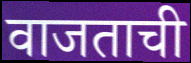
वाजताची